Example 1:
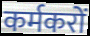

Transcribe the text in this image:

कर्मकरों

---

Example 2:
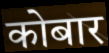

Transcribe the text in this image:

कोबार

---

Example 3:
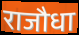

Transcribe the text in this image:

राजौधा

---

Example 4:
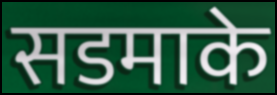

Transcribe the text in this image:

सडमाके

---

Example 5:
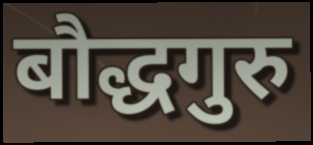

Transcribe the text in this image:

बौद्धगुरु